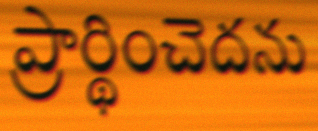
ప్రార్థించెదను